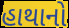
હાથાનો